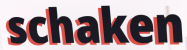
schaken